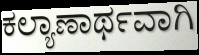
ಕಲ್ಯಾಣಾರ್ಥವಾಗಿ